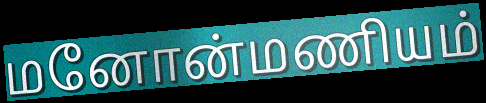
மனோன்மணியம்